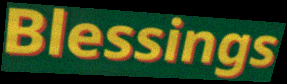
Blessings